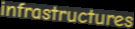
infrastructures